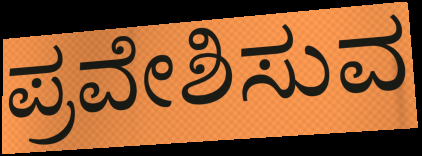
ಪ್ರವೇಶಿಸುವ